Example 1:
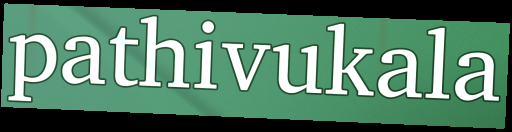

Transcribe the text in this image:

pathivukala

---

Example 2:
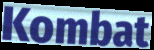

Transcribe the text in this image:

Kombat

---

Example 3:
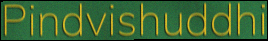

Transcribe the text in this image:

Pindvishuddhi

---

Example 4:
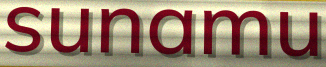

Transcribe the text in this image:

sunamu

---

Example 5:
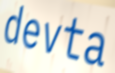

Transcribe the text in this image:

devta